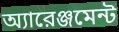
অ্যারেঞ্জমেন্ট